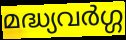
മദ്ധ്യവർഗ്ഗ